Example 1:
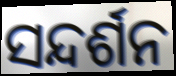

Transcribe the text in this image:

ସନ୍ଦର୍ଶନ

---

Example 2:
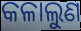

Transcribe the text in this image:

କଳାଲୁଣ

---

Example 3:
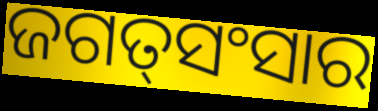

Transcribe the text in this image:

ଜଗତ୍‌ସଂସାର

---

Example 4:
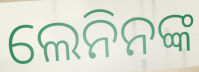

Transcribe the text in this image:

ଲେନିନଙ୍କ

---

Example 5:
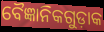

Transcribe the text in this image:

ବୈଜ୍ଞାନିକଗୁଡ଼ାକ